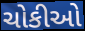
ચોકીઓ